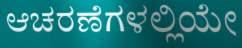
ಆಚರಣೆಗಳಲ್ಲಿಯೇ